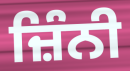
ਜ਼ਿੰਨੀ